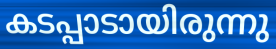
കടപ്പാടായിരുന്നു